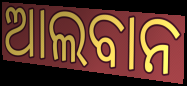
ଆଲବାନ